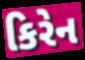
કિરેન